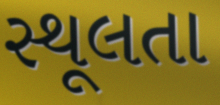
સ્થૂલતા